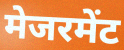
मेजरमेंट